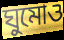
ঘুমোও